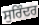
ਸੁਰਿੰਦਰ